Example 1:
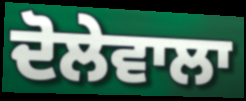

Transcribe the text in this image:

ਦੋਲੇਵਾਲਾ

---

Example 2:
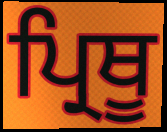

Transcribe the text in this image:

ਪ੍ਰਿਥੂ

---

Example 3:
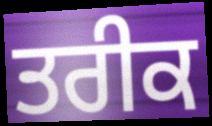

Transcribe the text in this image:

ਤਰੀਕ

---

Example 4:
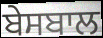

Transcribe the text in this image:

ਬੇਸਬਾਲ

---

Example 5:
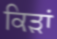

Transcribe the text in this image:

ਕਿੜਾਂ